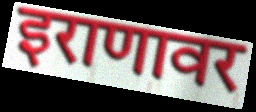
इराणावर